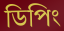
ডিপিং